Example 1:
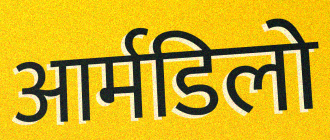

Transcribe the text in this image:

आर्मडिलो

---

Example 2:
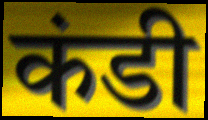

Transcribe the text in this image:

कंडी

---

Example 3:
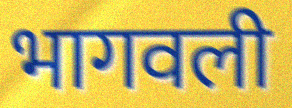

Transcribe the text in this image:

भागवली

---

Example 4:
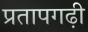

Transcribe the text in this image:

प्रतापगढ़ी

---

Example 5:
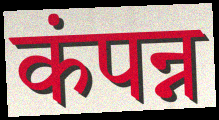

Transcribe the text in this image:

कंपन्न